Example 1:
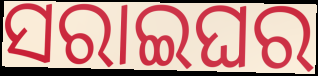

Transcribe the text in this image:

ସରାଇଘର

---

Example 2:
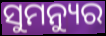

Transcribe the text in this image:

ସୁମନ୍ୟୁର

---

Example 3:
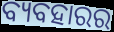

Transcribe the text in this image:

ବ୍ୟବହାରର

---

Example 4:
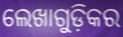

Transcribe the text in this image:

ଲେଖାଗୁଡ଼ିକର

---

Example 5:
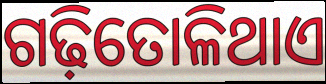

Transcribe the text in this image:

ଗଢ଼ିତୋଳିଥାଏ